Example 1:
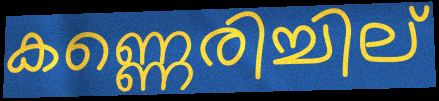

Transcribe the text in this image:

കണ്ണെരിച്ചില്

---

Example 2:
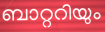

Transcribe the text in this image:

ബാറ്ററിയും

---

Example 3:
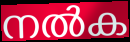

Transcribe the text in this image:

നൽക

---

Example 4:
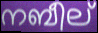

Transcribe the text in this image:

നബീല്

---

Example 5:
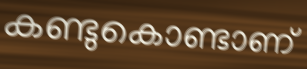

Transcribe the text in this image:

കണ്ടുകൊണ്ടാണ്